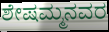
ಶೇಷಮ್ಮನವರ